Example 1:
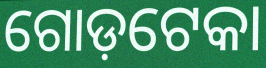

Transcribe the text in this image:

ଗୋଡ଼ଟେକା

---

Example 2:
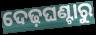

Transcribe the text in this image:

ଦେଢ଼ଘଣ୍ଟାରୁ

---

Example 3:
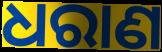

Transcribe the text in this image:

ଧରାଣ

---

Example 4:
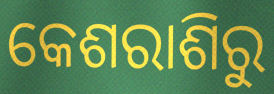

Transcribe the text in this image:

କେଶରାଶିରୁ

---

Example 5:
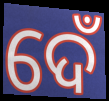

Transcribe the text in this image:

ଦେଁ